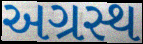
અગ્રસ્થ